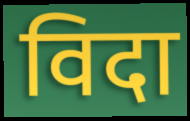
विदा